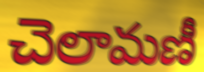
చెలామణీ